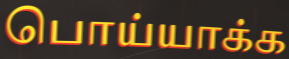
பொய்யாக்க